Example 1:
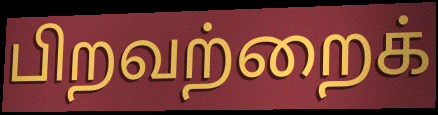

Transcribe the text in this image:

பிறவற்றைக்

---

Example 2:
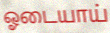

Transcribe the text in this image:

ஓடையாய்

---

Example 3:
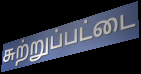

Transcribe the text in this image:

சுற்றுப்பட்டை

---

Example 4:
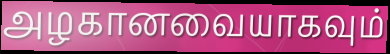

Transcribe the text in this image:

அழகானவையாகவும்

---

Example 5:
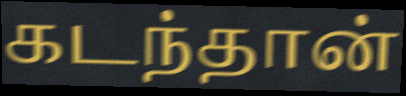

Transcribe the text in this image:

கடந்தான்